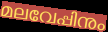
മലവേപ്പിനും